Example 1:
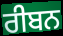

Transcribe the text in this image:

ਰੀਬਨ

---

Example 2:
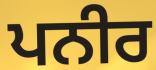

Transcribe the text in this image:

ਪਨੀਰ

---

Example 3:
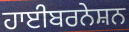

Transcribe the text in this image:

ਹਾਈਬਰਨੇਸ਼ਨ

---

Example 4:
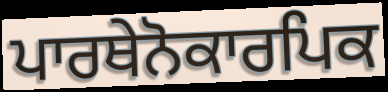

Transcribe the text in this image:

ਪਾਰਥੇਨੋਕਾਰਪਿਕ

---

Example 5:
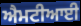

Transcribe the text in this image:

ਐਮਟੀਆਈ